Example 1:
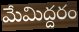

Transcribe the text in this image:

మేమిద్దరం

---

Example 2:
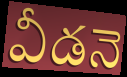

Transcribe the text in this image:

వీడనె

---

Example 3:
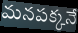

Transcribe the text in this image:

మనపక్కనే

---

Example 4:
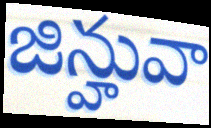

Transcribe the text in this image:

జిన్హువా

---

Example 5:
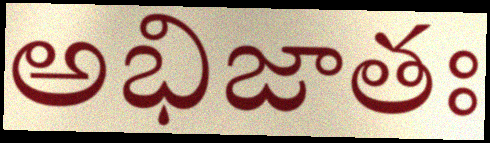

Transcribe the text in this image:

అభిజాతః